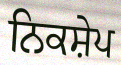
ਨਿਕਸ਼ੇਪ